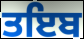
ਤਇਬ